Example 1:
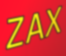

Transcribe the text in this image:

ZAX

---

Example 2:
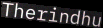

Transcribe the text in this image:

Therindhu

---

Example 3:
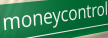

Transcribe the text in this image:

moneycontrol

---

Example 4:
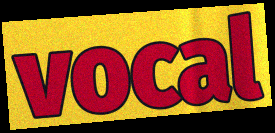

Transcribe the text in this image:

vocal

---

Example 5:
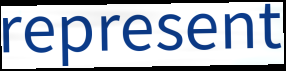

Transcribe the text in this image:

represent